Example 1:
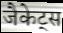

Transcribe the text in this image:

जैकेट्स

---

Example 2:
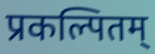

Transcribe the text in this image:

प्रकल्पितम्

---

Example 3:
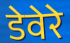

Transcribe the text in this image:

डेवेरे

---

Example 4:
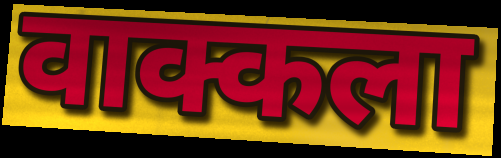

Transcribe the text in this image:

वाक्कला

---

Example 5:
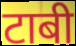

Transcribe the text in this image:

टाबी